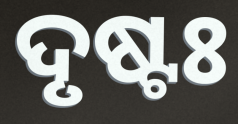
ଦୃଷ୍ଟଃ